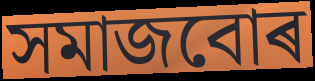
সমাজবোৰ